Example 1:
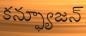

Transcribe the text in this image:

కన్ఫ్యూజన్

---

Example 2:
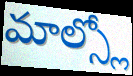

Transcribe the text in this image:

మాల్స్లో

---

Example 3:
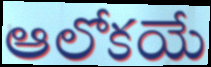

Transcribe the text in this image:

ఆలోకయే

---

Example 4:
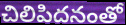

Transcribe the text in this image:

చిలిపిదనంతో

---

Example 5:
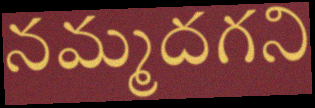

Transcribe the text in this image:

నమ్మదగని